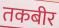
तकबीर